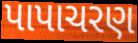
પાપાચરણ